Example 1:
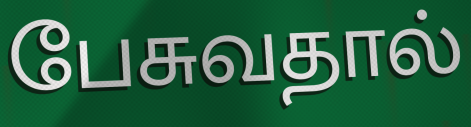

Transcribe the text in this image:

பேசுவதால்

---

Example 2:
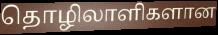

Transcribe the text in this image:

தொழிலாளிகளான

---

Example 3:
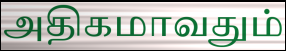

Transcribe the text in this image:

அதிகமாவதும்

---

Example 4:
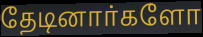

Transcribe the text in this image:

தேடினார்களோ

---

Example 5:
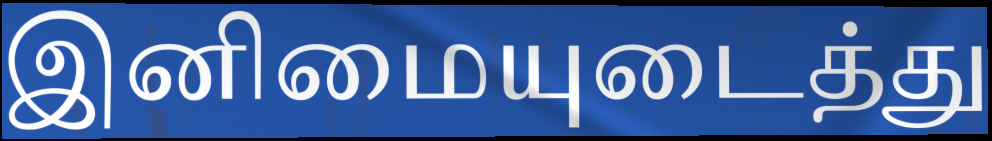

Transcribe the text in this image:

இனிமையுடைத்து